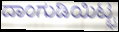
ದಾಂಗುಡಿಯಿಟ್ಟ